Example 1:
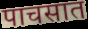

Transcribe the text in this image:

पाचसात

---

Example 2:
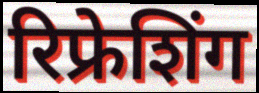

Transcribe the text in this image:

रिफ्रेशिंग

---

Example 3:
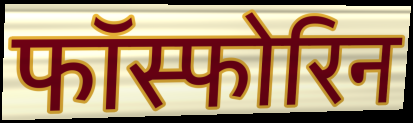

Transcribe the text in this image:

फॉस्फोरिन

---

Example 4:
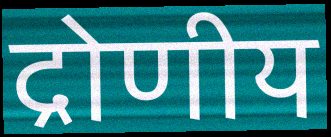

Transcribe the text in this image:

द्रोणीय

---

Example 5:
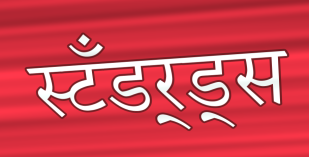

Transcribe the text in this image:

स्टँडर्ड्स